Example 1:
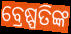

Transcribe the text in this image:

ବ୍ରେଷ୍ପତିଙ୍କ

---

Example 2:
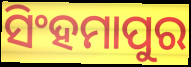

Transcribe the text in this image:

ସିଂହମାପୁର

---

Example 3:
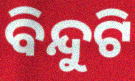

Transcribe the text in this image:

ବିନ୍ଦୁଟି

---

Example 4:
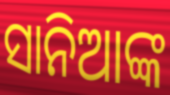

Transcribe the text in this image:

ସାନିଆଙ୍କ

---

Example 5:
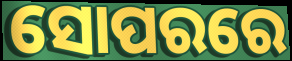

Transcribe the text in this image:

ସୋପରରେ